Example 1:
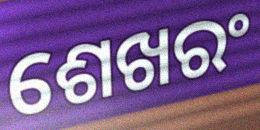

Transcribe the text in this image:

ଶେଖରଂ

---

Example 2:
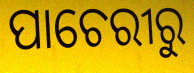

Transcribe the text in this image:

ପାଚେରୀରୁ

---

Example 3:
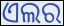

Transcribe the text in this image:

ଏଲର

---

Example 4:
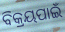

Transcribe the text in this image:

ବିକ୍ରୟପାଇଁ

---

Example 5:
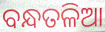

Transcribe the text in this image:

ବନ୍ଧତଳିଆ